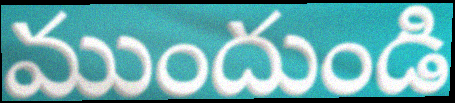
ముందుండి